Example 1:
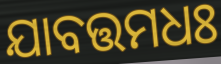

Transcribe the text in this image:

ଯାବତ୍ତମଧଃ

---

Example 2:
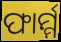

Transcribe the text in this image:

ଫାର୍ମ୍ମ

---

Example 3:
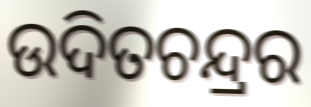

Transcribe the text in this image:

ଉଦିତଚନ୍ଦ୍ରର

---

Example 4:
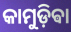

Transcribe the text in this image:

କାମୁଡ଼ିଵା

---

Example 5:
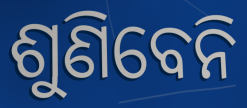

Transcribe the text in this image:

ଶୁଣିବେନି